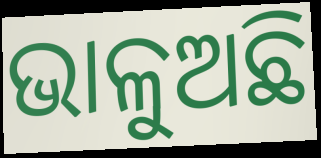
ଭାଳୁଅଛି